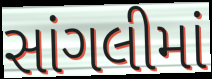
સાંગલીમાં